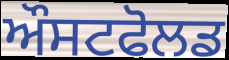
ਔਸਟਫੋਲਡ